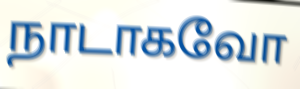
நாடாகவோ